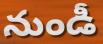
నుండీ